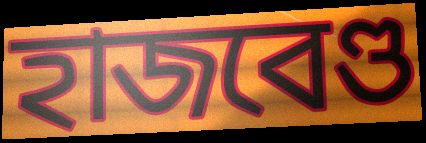
হাজবেণ্ড